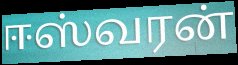
ஈஸ்வரன்